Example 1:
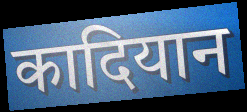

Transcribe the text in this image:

कादियान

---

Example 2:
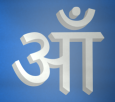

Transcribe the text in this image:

आँ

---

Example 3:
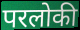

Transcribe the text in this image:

परलोकी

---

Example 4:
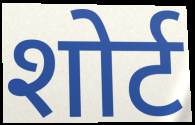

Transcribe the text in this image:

शोर्ट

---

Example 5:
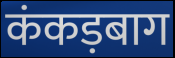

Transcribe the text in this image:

कंकड़बाग